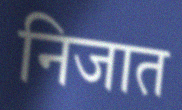
निजात